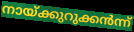
നായ്ക്കുറുക്കൻന്ന്